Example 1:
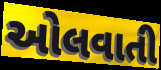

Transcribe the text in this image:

ઓલવાતી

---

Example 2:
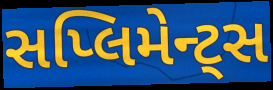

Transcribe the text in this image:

સપ્લિમેન્ટ્સ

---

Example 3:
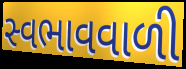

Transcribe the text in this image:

સ્વભાવવાળી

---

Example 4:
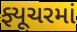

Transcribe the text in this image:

ફ્યૂચરમાં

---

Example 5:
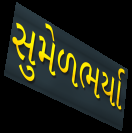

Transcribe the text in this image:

સુમેળભર્યા